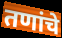
तणांचे